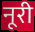
नूरी